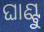
ଘାଣ୍ଟୁ